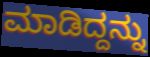
ಮಾಡಿದ್ದನ್ನು